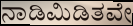
ನಾಡಿಮಿಡಿತವೇ